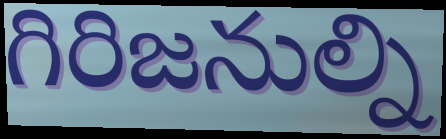
గిరిజనుల్ని